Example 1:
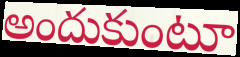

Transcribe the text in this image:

అందుకుంటూ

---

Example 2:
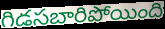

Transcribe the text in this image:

గిడసబారిపోయింది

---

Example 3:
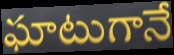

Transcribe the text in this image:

ఘాటుగానే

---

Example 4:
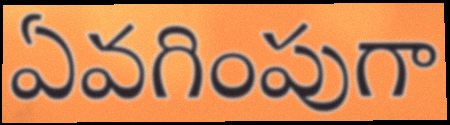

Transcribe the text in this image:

ఏవగింపుగా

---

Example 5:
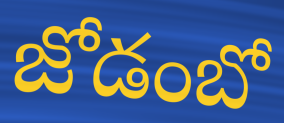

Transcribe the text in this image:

జోడంబో